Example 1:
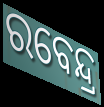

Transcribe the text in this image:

ରବେନ୍ଦ୍ର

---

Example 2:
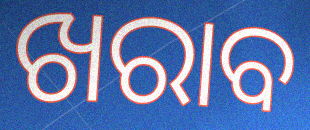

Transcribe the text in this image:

ଖରାବ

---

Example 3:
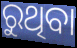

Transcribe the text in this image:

ରୁଥିବା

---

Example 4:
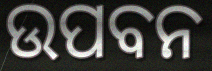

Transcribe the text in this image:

ଉପବନ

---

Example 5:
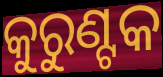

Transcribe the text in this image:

କୁରୁଣ୍ଟକ